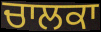
ਚਾਲਕਾ